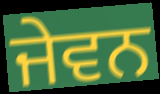
ਜੇਵਨ